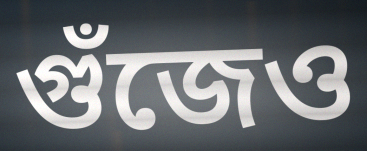
গুঁজেও